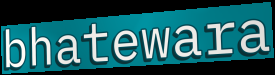
bhatewara